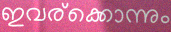
ഇവര്ക്കൊന്നും